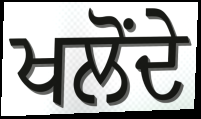
ਖਲੋਂਦੇ